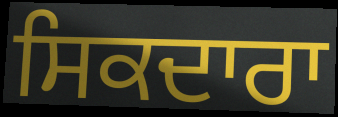
ਸਿਕਦਾਰਾ